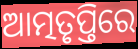
ଆତ୍ମତୃପ୍ତିରେ